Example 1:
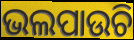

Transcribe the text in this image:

ଭଲପାଉଚି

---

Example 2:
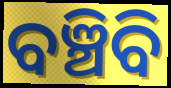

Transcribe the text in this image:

ବଞ୍ଚିବି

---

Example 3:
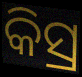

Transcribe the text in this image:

କିସ୍ର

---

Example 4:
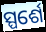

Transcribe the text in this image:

ସ୍ପର୍ଶେ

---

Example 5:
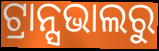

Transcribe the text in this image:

ଟ୍ରାନ୍ସଭାଲରୁ